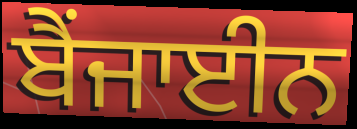
ਬੈਂਜਾਈਨ